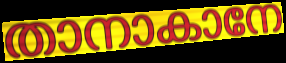
താനാകാനേ